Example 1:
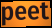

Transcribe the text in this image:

peet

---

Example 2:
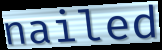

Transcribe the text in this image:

nailed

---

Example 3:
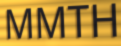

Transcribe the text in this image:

MMTH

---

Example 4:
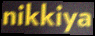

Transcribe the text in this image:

nikkiya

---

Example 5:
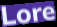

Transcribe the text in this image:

Lore